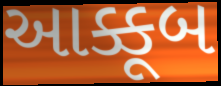
આક્કૂબ